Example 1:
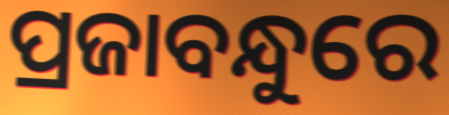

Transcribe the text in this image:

ପ୍ରଜାବନ୍ଧୁରେ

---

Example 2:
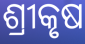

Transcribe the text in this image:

ଶ୍ରୀକୃଷ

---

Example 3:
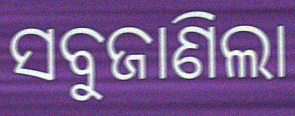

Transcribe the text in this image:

ସବୁଜାଣିଲା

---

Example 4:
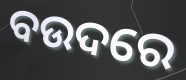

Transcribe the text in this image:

ବଉଦରେ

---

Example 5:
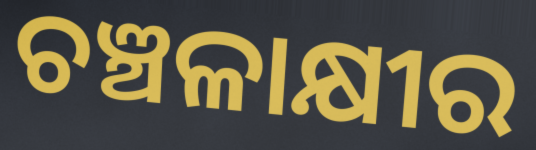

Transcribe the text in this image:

ଚଞ୍ଚଳାକ୍ଷୀର